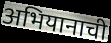
अभियानाची